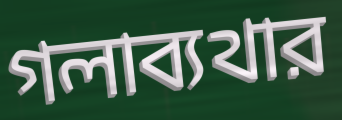
গলাব্যথার